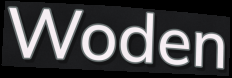
Woden